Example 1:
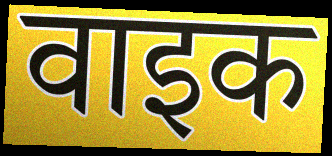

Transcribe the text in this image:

वाइक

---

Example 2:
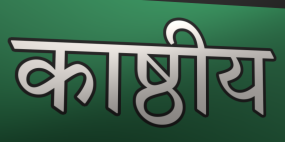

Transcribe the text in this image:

काष्ठीय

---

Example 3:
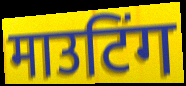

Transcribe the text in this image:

माउटिंग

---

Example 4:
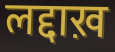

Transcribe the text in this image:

लद्दाख़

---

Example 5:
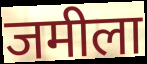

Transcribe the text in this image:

जमीला